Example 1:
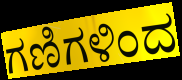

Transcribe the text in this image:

ಗಣಿಗಳಿಂದ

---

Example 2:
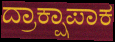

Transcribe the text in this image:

ದ್ರಾಕ್ಷಾಪಾಕ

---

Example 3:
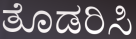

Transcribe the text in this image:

ತೊಡರಿಸಿ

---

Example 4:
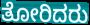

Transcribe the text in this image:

ತೋರಿದರು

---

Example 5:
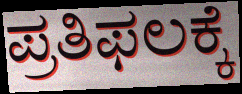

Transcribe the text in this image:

ಪ್ರತಿಫಲಕ್ಕೆ